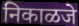
निकाळजे